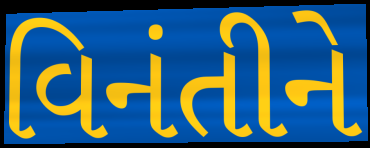
વિનંતીને